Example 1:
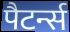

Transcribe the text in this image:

पैटर्न्स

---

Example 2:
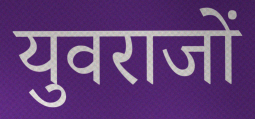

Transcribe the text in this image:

युवराजों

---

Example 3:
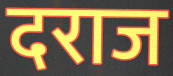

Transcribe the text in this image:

दराज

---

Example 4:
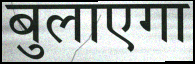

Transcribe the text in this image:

बुलाएगा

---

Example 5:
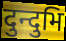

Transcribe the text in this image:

दुन्दुभि